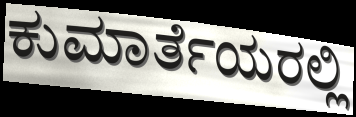
ಕುಮಾರ್ತೆಯರಲ್ಲಿ